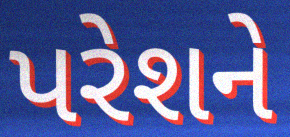
પરેશને